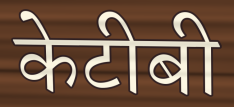
केटीबी